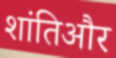
शांतिऔर